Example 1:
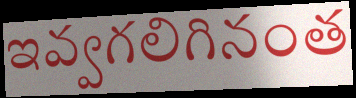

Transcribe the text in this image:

ఇవ్వగలిగినంత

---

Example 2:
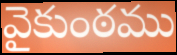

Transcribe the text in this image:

వైకుంఠము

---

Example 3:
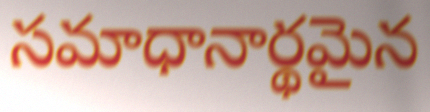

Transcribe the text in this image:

సమాధానార్థమైన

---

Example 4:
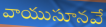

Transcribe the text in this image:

వాయుసూనవే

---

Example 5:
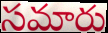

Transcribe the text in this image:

సమారు